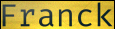
Franck